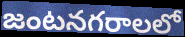
జంటనగరాలలో